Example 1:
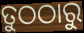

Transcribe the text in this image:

ତୁଠଠାରୁ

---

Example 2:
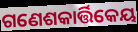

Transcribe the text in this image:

ଗଣେଶକାର୍ତ୍ତିକେୟ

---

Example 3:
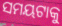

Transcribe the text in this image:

ସମୟଟାକୁ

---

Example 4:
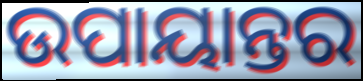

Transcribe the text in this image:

ଉପାୟାନ୍ତର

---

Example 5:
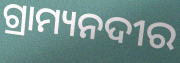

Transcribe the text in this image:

ଗ୍ରାମ୍ୟନଦୀର